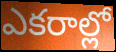
ఎకరాల్లో